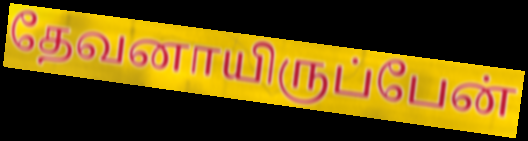
தேவனாயிருப்பேன்